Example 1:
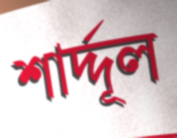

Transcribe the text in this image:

শার্দ্দূল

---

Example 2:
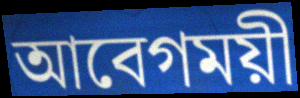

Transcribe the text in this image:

আবেগময়ী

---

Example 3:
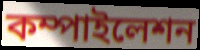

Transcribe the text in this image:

কম্পাইলেশন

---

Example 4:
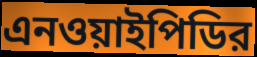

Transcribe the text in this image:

এনওয়াইপিডির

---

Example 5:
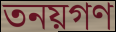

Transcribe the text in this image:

তনয়গণ